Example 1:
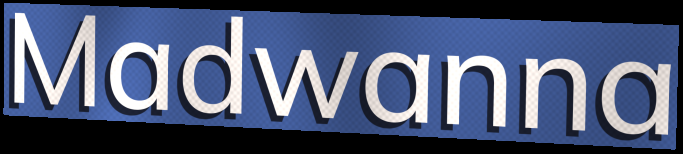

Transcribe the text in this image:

Madwanna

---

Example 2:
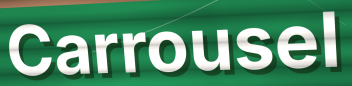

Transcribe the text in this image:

Carrousel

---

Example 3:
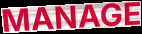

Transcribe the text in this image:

MANAGE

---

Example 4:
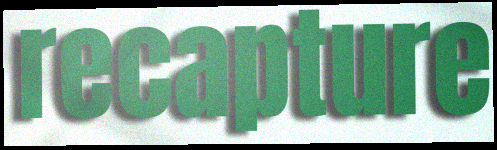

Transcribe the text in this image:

recapture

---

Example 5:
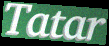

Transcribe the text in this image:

Tatar